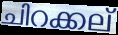
ചിറക്കല്